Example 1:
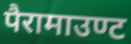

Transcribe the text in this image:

पैरामाउण्ट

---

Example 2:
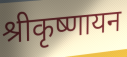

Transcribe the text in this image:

श्रीकृष्णायन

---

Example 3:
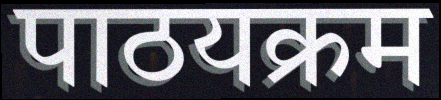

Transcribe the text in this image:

पाठयक्रम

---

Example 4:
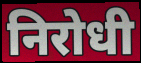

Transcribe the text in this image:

निरोधी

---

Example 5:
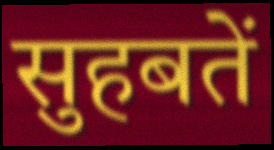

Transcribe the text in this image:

सुहबतें